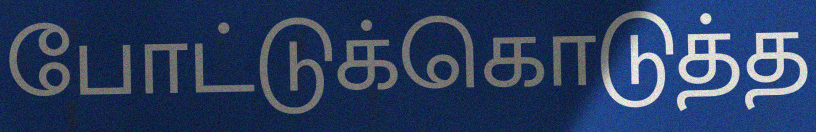
போட்டுக்கொடுத்த